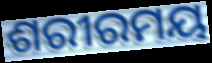
ଶରୀରମୟ